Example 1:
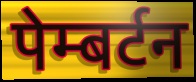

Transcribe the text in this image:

पेम्बर्टन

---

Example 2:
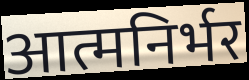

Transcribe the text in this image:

आत्मनिर्भर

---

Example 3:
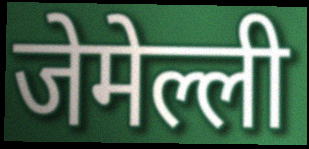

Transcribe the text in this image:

जेमेल्ली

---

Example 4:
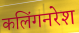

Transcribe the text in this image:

कलिंगनरेश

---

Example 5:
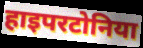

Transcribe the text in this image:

हाइपरटोनिया